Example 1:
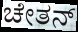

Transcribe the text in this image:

ಚೇತನ್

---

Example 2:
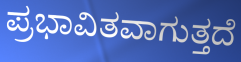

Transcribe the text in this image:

ಪ್ರಭಾವಿತವಾಗುತ್ತದೆ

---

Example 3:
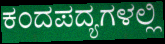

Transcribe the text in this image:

ಕಂದಪದ್ಯಗಳಲ್ಲಿ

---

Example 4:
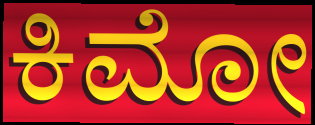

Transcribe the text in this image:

ಕಿಮೋ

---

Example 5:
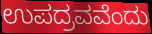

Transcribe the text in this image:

ಉಪದ್ರವವೆಂದು